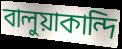
বালুয়াকান্দি